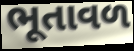
ભૂતાવળ